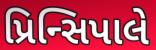
પ્રિન્સિપાલે